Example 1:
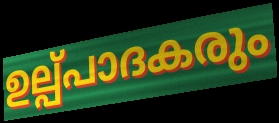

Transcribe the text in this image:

ഉല്പ്പാദകരും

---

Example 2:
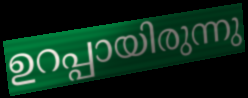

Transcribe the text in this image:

ഉറപ്പായിരുന്നു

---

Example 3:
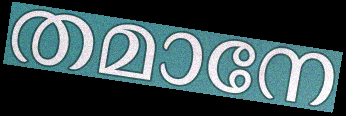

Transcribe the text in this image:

തമാനേ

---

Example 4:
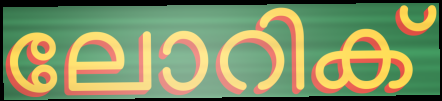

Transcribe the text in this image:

ലോറിക്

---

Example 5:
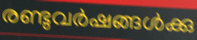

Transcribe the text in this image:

രണ്ടുവർഷങ്ങൾക്കു